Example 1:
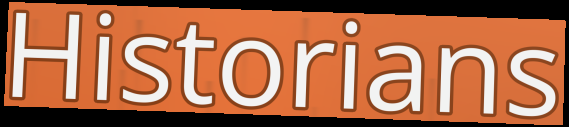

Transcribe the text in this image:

Historians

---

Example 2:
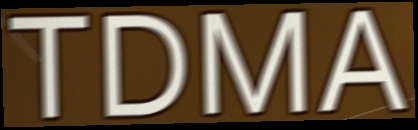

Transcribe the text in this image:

TDMA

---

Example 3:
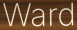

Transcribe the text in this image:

Ward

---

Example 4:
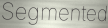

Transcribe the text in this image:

Segmented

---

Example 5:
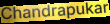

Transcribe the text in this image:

Chandrapukar